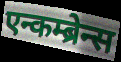
एन्कम्ब्रेन्स